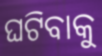
ଘଟିବାକୁ